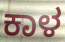
ಕಾಳ